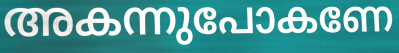
അകന്നുപോകണേ